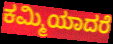
ಕಮ್ಮಿಯಾದರೆ